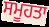
ਸਮੂਹਤਾ